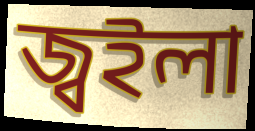
জ্বইলা